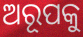
ଅରୂପକୁ